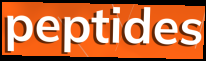
peptides